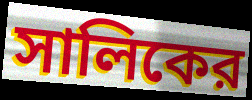
সালিকের